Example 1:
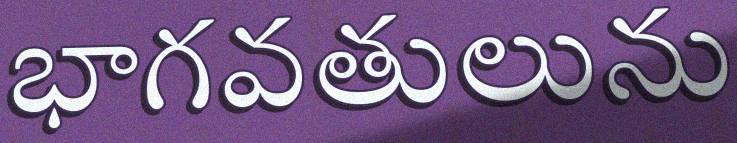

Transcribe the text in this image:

భాగవతులును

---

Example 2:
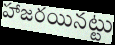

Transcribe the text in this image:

హాజరయినట్టు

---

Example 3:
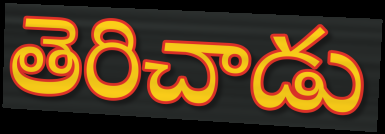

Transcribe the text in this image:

తెరిచాడు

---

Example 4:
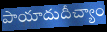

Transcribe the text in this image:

పాయాదుదీచ్యాం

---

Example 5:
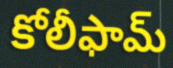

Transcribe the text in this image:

కోలీఫామ్